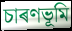
চাৰণভূমি